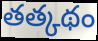
తత్కథం